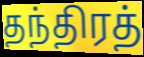
தந்திரத்